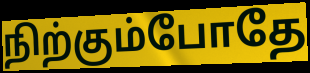
நிற்கும்போதே